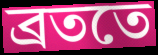
ব্রততে